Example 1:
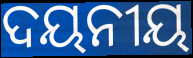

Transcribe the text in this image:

ଦୟନୀୟ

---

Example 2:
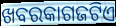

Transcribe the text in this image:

ଖବରକାଗଜଟିଏ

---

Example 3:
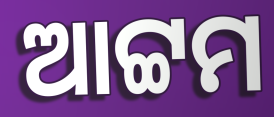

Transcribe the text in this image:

ଆଟ୍ଟମ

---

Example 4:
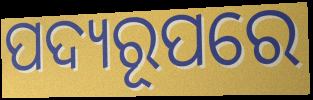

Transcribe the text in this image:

ପଦ୍ୟରୂପରେ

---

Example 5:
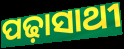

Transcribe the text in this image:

ପଢ଼ାସାଥୀ